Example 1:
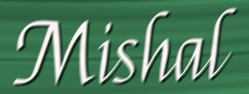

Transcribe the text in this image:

Mishal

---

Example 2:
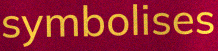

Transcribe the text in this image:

symbolises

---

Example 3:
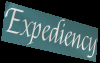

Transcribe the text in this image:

Expediency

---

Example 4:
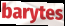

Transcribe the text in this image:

barytes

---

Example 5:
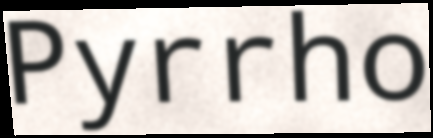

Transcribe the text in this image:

Pyrrho